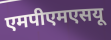
एमपीएमएसयू